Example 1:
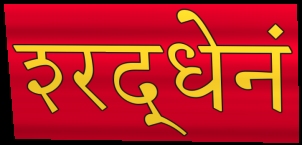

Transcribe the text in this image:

श्रद्धेनं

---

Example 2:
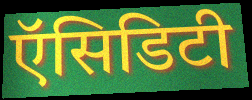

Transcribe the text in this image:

ऍसिडिटी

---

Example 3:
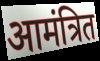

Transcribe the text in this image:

आमंत्रित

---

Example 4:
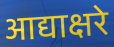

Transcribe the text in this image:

आद्याक्षरे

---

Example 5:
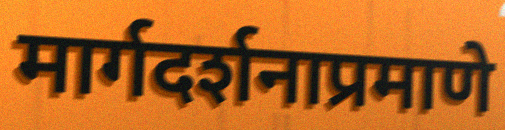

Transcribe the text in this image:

मार्गदर्शनाप्रमाणे